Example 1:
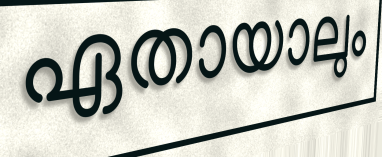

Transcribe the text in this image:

ഏതായാലും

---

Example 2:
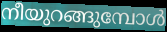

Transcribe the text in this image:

നീയുറങ്ങുമ്പോൾ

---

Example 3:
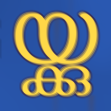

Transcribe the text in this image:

യ്ക്കു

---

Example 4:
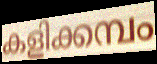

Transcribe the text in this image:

കളിക്കമ്പം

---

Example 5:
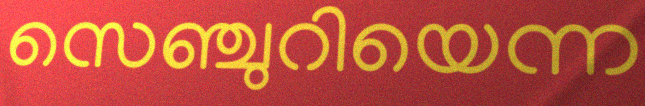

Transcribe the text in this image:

സെഞ്ചുറിയെന്ന